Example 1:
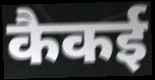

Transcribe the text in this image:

कैकई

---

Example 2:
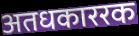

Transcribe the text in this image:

अतधकाररक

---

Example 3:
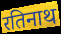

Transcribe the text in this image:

रतिनाथ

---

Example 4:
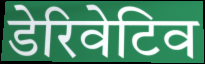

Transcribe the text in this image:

डेरिवेटिव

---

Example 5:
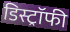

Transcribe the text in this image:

डिस्ट्रॉफी